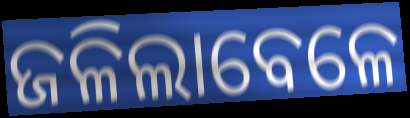
ଜଳିଲାବେଳେ